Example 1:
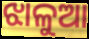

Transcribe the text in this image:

ଝାଳୁଆ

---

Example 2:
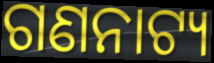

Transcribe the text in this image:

ଗଣନାଟ୍ୟ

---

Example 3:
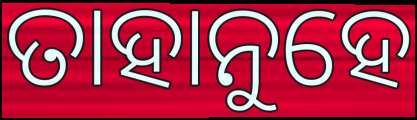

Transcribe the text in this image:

ତାହାନୁହେ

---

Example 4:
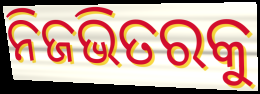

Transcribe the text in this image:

ନିଜଭିତରକୁ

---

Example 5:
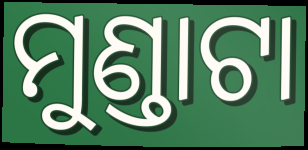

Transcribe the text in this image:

ମୁଣ୍ଡାଟା